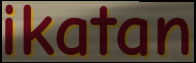
ikatan